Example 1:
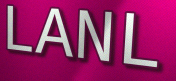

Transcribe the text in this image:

LANL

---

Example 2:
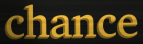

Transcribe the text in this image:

chance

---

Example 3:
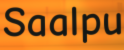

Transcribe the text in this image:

Saalpu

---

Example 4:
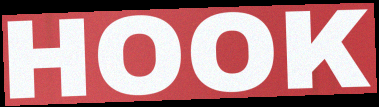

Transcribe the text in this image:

HOOK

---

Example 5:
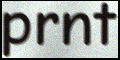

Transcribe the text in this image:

prnt